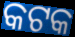
କଟକ